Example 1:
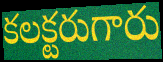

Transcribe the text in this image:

కలక్టరుగారు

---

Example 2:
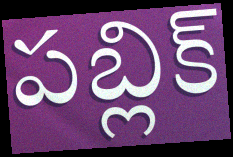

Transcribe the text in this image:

పబ్లిక్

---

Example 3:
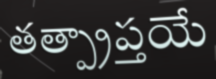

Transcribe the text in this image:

తత్ప్రాప్తయే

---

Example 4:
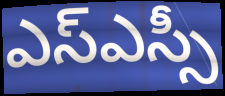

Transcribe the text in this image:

ఎస్ఎస్సీ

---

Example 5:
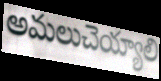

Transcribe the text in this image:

అమలుచెయ్యాలి